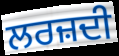
ਲਰਜ਼ਦੀ